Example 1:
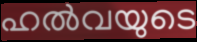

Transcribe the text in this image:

ഹൽവയുടെ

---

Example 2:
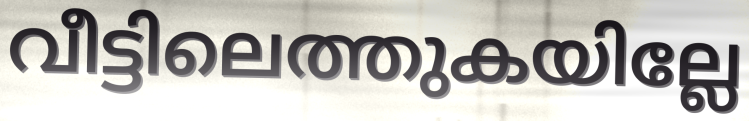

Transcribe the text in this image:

വീട്ടിലെത്തുകയില്ലേ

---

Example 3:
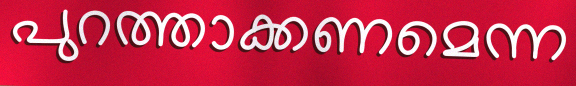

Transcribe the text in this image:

പുറത്താക്കണമെന്ന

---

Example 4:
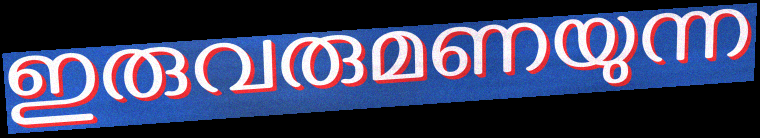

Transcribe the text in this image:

ഇരുവരുമണയുന്ന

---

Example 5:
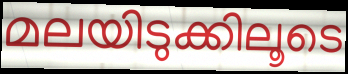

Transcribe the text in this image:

മലയിടുക്കിലൂടെ